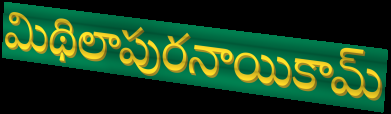
మిథిలాపురనాయికామ్